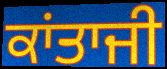
ਕਾਂਤਾਜੀ